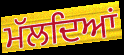
ਮੱਲਦਿਆਂ